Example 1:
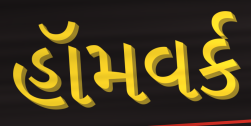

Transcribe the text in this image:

હૉમવર્ક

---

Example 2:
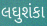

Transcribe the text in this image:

લઘુશંકા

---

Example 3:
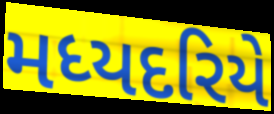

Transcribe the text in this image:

મધ્યદરિયે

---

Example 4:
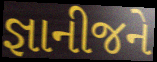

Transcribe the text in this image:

જ્ઞાનીજને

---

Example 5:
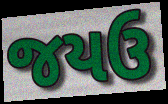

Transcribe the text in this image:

જયઉ